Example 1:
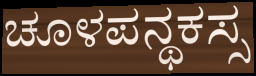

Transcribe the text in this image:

ಚೂಳಪನ್ಥಕಸ್ಸ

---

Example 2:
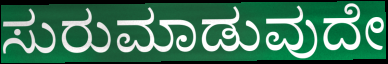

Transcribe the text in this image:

ಸುರುಮಾಡುವುದೇ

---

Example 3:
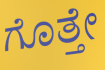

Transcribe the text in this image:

ಗೊತ್ತೇ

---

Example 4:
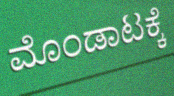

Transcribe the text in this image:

ಮೊಂಡಾಟಕ್ಕೆ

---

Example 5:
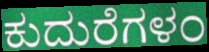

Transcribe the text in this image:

ಕುದುರೆಗಳಂ